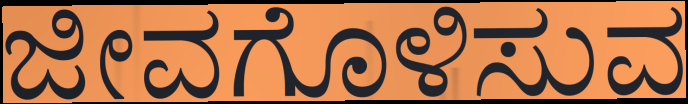
ಜೀವಗೊಳಿಸುವ